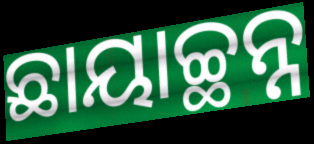
ଛାୟାଚ୍ଛନ୍ନ